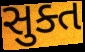
સુક્ત